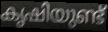
കൃഷിയുണ്ട്